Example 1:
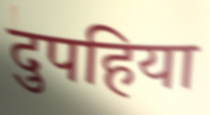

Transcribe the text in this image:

दुपहिया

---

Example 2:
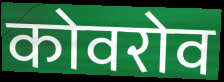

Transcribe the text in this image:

कोवरोव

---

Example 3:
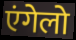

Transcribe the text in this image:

एंगेलो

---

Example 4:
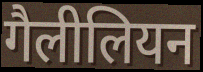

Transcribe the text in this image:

गैलीलियन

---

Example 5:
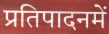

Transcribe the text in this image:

प्रतिपादनमें